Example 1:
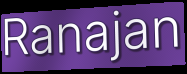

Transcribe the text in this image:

Ranajan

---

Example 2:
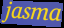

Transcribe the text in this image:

jasma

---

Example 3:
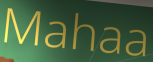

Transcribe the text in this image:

Mahaa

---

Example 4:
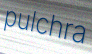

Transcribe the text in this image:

pulchra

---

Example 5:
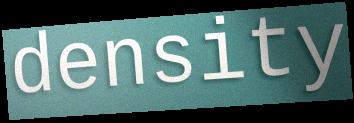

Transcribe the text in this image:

density